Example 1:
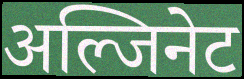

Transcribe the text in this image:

अल्जिनेट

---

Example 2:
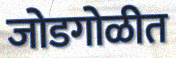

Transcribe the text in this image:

जोडगोळीत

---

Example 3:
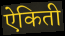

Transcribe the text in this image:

ऐकिती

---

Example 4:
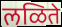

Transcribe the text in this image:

लळिते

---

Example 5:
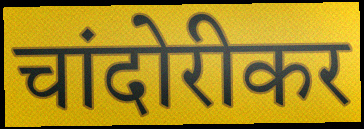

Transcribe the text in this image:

चांदोरीकर